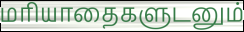
மரியாதைகளுடனும்